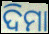
ଦିମା